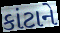
કાંટાને